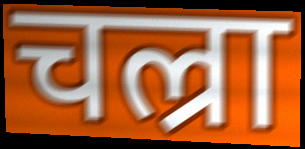
चल्रा